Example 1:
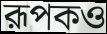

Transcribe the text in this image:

রূপকও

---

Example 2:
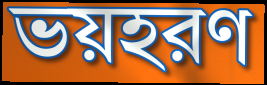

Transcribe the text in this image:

ভয়হরণ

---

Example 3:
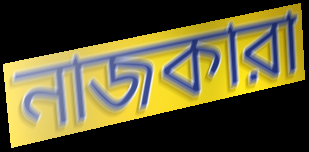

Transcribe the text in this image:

নাজকারা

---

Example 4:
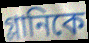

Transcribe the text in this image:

গ্লানিকে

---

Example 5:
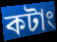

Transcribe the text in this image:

কটাং